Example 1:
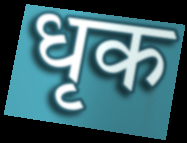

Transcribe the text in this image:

धृक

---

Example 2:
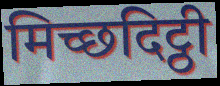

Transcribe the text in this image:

मिच्छदिट्ठी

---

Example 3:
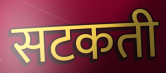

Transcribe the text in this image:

सटकती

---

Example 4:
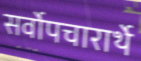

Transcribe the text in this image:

सर्वोपचारार्थे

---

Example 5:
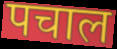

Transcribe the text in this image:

पचाल